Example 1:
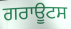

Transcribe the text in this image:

ਗਰਾਊਟਸ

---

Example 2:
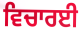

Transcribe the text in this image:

ਵਿਚਾਰਈ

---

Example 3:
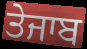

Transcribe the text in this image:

ਤੇਜਾਬ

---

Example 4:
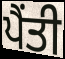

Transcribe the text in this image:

ਪੈਂਤੀ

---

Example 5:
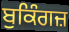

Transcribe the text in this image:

ਬੁਕਿੰਗਜ਼